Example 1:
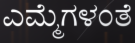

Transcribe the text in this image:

ಎಮ್ಮೆಗಳಂತೆ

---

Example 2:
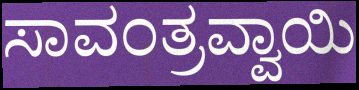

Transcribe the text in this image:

ಸಾವಂತ್ರವ್ವಾಯಿ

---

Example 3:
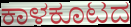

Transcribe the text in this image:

ಕಾಳಕೂಟದ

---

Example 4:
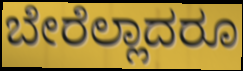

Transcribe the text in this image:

ಬೇರೆಲ್ಲಾದರೂ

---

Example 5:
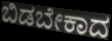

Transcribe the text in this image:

ಬಿಡಬೇಕಾದ